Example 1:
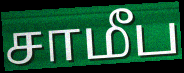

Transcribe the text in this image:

சாமீப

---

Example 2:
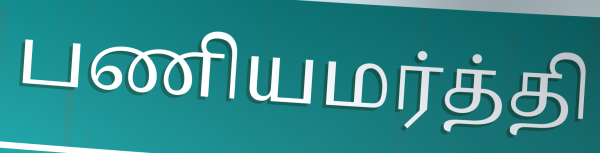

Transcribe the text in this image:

பணியமர்த்தி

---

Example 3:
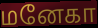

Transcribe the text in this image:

மனேகா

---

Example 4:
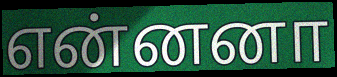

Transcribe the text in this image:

என்னனா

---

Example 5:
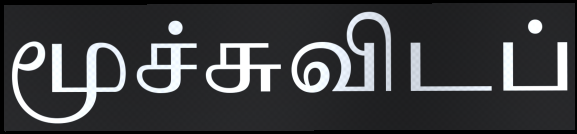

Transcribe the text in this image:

மூச்சுவிடப்